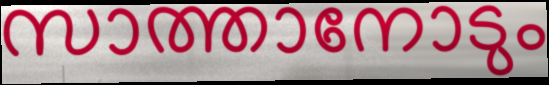
സാത്താനോടും